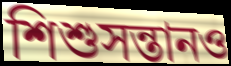
শিশুসন্তানও